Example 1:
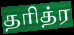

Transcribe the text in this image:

தரித்ர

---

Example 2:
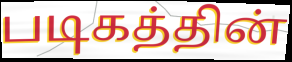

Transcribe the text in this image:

படிகத்தின்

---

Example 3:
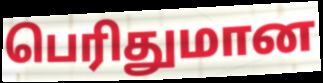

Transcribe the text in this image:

பெரிதுமான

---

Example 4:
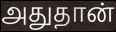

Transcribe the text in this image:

அதுதான்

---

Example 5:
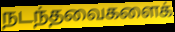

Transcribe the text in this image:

நடந்தவைகளைக்